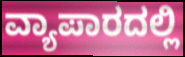
ವ್ಯಾಪಾರದಲ್ಲಿ